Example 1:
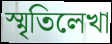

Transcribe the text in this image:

স্মৃতিলেখা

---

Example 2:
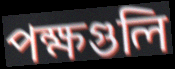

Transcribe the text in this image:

পক্ষগুলি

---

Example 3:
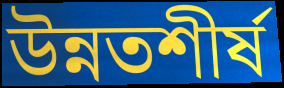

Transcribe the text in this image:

উন্নতশীর্ষ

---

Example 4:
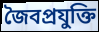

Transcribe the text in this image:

জৈবপ্রযুক্তি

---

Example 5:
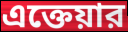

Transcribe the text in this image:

এক্তেয়ার